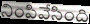
నింపివేసింది